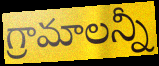
గ్రామాలన్నీ